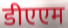
डीएएम